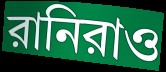
রানিরাও